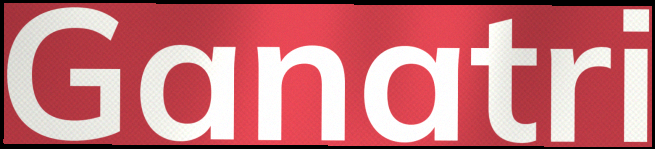
Ganatri